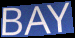
BAY